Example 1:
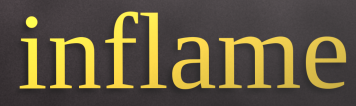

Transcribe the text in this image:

inflame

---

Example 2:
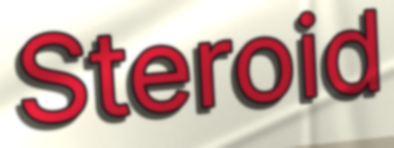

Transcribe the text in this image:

Steroid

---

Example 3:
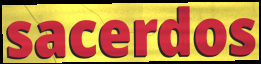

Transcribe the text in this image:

sacerdos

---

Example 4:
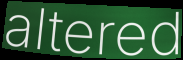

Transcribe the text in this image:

altered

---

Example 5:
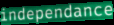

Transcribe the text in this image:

independance